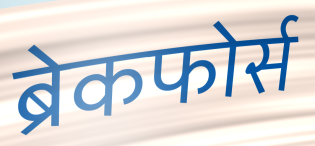
ब्रेकफोर्स